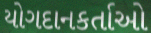
યોગદાનકર્તાઓ